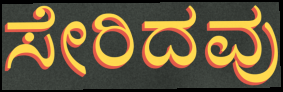
ಸೇರಿದವು